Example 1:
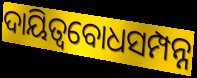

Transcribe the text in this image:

ଦାୟିତ୍ୱବୋଧସମ୍ପନ୍ନ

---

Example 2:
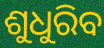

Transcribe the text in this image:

ଶୁଧୁରିବ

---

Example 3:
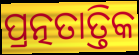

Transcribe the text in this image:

ପ୍ରତ୍ନତାତ୍ତିକ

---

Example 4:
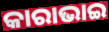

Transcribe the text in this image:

କାରାଭାଇ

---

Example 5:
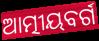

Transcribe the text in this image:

ଆତ୍ମୀୟବର୍ଗ